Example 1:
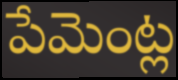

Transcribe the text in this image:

పేమెంట్ల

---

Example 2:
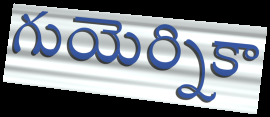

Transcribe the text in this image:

గుయెర్నికా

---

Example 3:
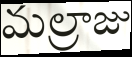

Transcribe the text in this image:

మల్రాజు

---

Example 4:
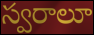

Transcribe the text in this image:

స్వరాలూ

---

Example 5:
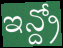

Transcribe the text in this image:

ఇన్ద్రో